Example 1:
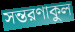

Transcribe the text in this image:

সন্তরণাকুল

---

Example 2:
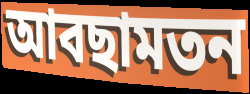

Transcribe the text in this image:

আবছামতন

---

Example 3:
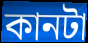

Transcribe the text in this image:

কানটা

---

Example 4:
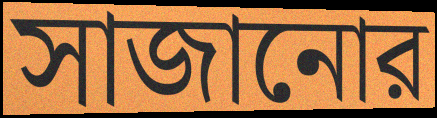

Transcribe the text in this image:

সাজানোর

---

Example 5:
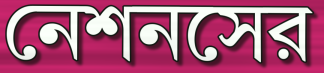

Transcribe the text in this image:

নেশনসের